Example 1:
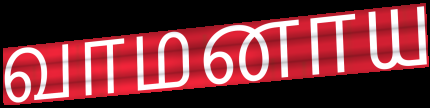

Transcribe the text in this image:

வாமனாய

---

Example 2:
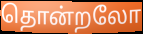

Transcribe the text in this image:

தொன்றலோ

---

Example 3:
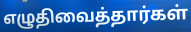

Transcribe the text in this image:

எழுதிவைத்தார்கள்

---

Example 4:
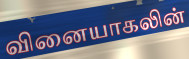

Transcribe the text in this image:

வினையாகலின்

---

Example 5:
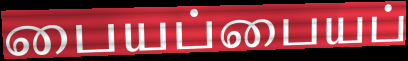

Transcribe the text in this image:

பையப்பையப்